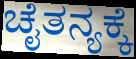
ಚೈತನ್ಯಕ್ಕೆ